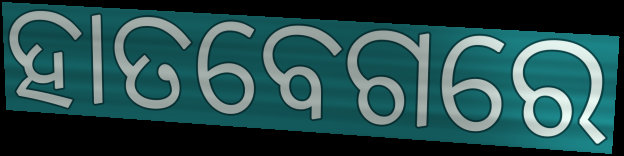
ହାତବେଗରେ